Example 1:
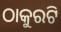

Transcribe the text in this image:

ଠାକୁରଟି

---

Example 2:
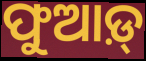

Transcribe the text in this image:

ଫୁଆଡ଼୍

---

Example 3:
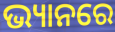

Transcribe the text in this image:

ଭ୍ୟାନରେ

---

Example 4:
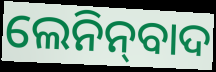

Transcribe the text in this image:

ଲେନିନ୍‌ବାଦ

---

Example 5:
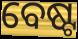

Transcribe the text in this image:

ବେଷ୍ଟ